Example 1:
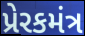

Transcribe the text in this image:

પ્રેરકમંત્ર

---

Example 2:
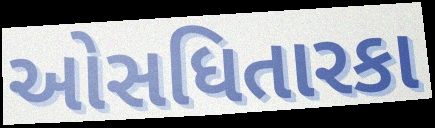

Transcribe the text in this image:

ઓસધિતારકા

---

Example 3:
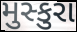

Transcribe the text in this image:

મુસ્કુરા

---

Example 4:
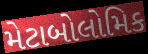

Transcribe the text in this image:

મેટાબોલોમિક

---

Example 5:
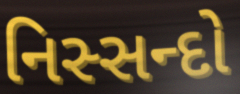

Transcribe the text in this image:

નિસ્સન્દો